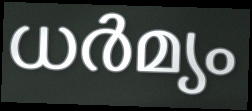
ധർമ്യം